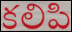
కలిపి